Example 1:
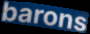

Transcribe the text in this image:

barons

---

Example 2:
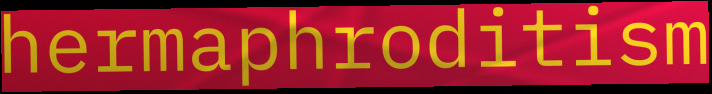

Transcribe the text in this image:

hermaphroditism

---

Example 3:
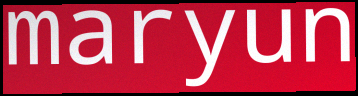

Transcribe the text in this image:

maryun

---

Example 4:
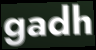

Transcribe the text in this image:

gadh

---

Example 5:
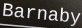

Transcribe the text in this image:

Barnaby